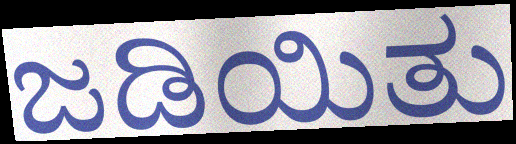
ಜಡಿಯಿತು